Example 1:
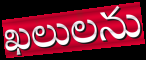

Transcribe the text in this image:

ఖలులను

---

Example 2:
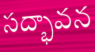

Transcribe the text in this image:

సద్భావన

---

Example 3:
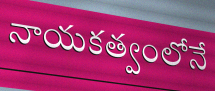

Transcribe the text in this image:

నాయకత్వంలోనే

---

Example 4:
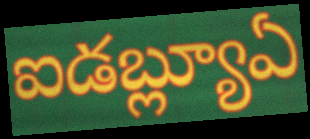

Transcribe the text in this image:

ఐడబ్ల్యూఏ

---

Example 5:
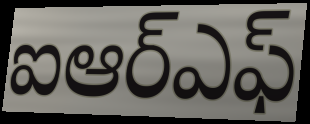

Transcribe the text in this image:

ఐఆర్ఎఫ్